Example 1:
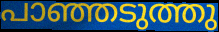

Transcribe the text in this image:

പാഞ്ഞടുത്തു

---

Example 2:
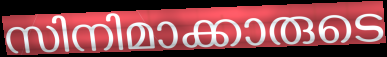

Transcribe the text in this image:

സിനിമാക്കാരുടെ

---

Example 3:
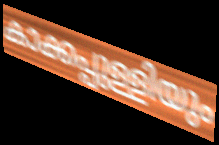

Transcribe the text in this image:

കാക്കപ്പുള്ളിയും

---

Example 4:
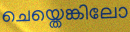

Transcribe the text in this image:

ചെയ്തെങ്കിലോ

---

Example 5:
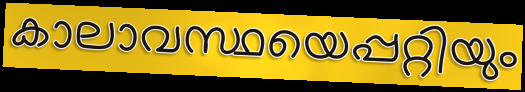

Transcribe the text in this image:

കാലാവസ്ഥയെപ്പറ്റിയും